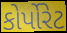
કોર્પોરેટ